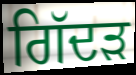
ਗਿੱਦਡ਼